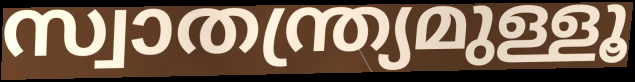
സ്വാതന്ത്ര്യമുള്ളൂ